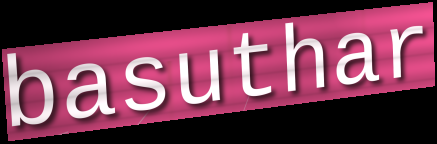
basuthar